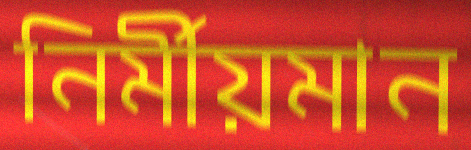
নির্মীয়মান